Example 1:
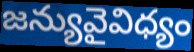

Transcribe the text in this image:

జన్యువైవిధ్యం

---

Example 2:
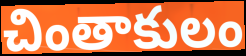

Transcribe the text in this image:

చింతాకులం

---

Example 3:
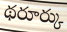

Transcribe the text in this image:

థరూర్కు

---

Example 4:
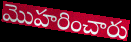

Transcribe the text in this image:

మొహరించారు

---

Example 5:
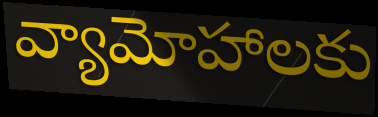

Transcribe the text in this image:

వ్యామోహాలకు